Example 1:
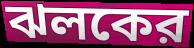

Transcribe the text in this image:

ঝলকের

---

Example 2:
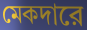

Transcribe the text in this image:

মেকদারে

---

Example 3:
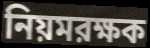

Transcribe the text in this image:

নিয়মরক্ষক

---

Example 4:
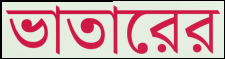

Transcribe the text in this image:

ভাতারের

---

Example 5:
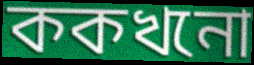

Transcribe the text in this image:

ককখনো